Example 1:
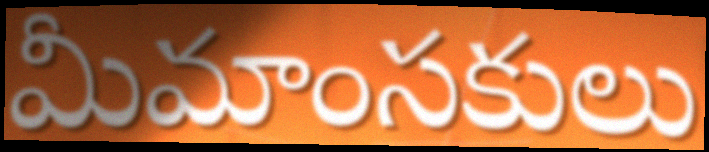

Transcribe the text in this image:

మీమాంసకులు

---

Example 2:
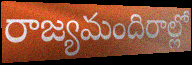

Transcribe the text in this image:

రాజ్యమందిరాల్లో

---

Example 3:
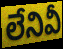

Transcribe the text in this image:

లేనివీ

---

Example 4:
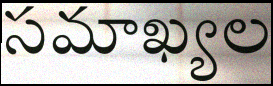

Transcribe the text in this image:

సమాఖ్యల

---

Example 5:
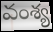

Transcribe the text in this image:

వంశ్య